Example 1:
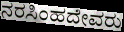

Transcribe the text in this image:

ನರಸಿಂಹದೇವರು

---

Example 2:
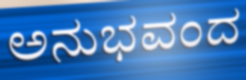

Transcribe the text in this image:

ಅನುಭವಂದ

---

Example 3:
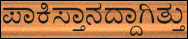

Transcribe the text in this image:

ಪಾಕಿಸ್ತಾನದ್ದಾಗಿತ್ತು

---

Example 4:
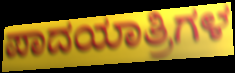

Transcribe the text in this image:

ಪಾದಯಾತ್ರಿಗಳ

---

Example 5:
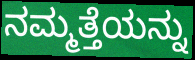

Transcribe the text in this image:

ನಮ್ಮತ್ತೆಯನ್ನು